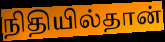
நிதியில்தான்